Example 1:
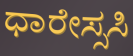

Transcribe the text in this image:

ಧಾರೇಸ್ಸಸಿ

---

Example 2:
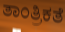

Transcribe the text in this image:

ತಾಂತ್ರಿಕತೆ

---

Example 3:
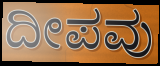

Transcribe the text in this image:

ದೀಪವು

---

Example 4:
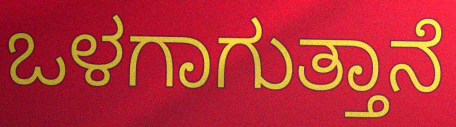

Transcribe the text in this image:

ಒಳಗಾಗುತ್ತಾನೆ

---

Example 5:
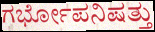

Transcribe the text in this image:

ಗರ್ಭೋಪನಿಷತ್ತು